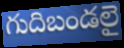
గుదిబండలై